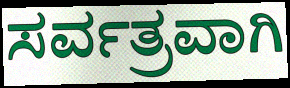
ಸರ್ವತ್ರವಾಗಿ